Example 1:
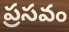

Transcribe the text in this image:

ప్రసవం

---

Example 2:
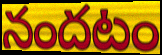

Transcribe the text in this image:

నందటం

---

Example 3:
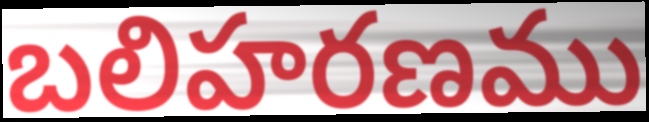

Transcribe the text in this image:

బలిహరణము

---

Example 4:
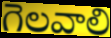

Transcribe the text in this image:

గెలవాలి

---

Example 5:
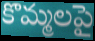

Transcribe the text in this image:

కొమ్మలపై